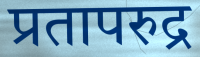
प्रतापरुद्र